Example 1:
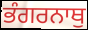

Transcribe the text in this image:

ਭੰਗਰਨਾਥੁ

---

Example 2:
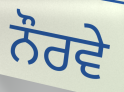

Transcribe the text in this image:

ਨੌਰਵੇ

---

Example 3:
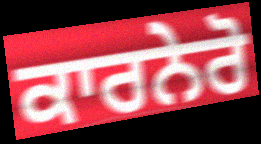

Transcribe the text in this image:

ਕਾਰਨੇਰੋ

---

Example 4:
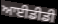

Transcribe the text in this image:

ਆਈਡੀਡੀ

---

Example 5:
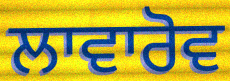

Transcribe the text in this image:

ਲਾਵਾਰੋਵ